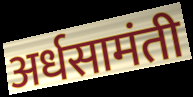
अर्धसामंती